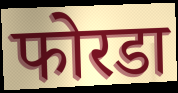
फोरडा